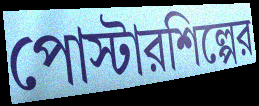
পোস্টারশিল্পের